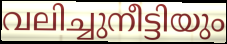
വലിച്ചുനീട്ടിയും